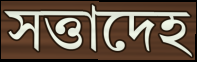
সত্তাদেহ